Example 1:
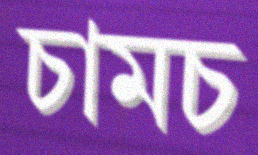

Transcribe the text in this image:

চামচ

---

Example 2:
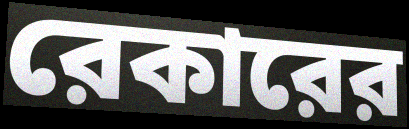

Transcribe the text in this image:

রেকারের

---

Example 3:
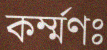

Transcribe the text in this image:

কর্ম্মণঃ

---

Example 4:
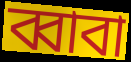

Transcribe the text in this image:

ব্বাবা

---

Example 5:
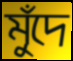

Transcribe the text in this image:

মুঁদে